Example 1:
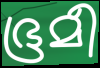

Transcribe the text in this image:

ഭൂമീ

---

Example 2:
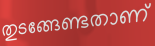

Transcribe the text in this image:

തുടങ്ങേണ്ടതാണ്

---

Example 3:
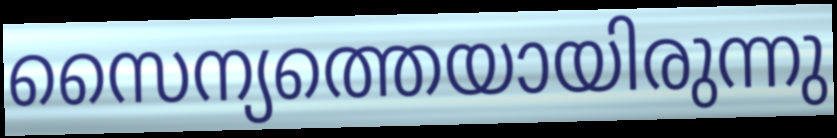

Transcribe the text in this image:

സൈന്യത്തെയായിരുന്നു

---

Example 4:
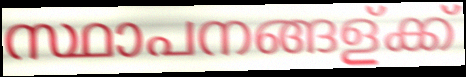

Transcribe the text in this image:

സ്ഥാപനങ്ങള്ക്ക്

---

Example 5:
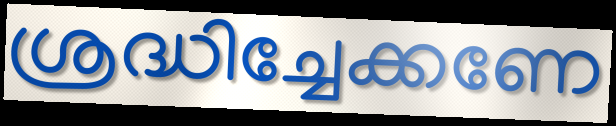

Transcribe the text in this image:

ശ്രദ്ധിച്ചേക്കണേ